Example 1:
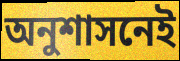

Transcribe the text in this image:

অনুশাসনেই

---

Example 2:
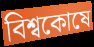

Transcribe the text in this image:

বিশ্বকোষে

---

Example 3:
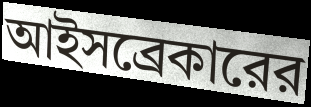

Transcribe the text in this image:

আইসব্রেকারের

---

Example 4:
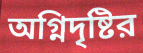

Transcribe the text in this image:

অগ্নিদৃষ্টির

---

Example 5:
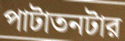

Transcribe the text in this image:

পাটাতনটার